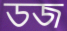
ডজ